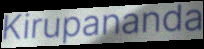
Kirupananda